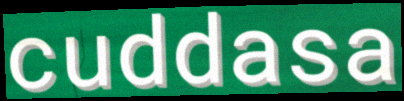
cuddasa